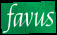
favus